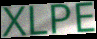
XLPE